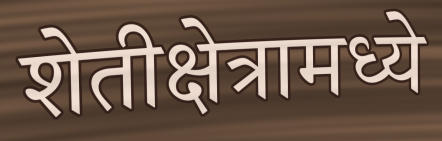
शेतीक्षेत्रामध्ये